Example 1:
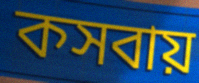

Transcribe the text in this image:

কসবায়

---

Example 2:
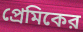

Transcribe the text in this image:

প্রেমিকের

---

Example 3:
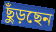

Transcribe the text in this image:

ছুঁড়ছেন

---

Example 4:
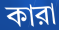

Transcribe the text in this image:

কারা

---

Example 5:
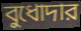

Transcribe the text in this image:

বুধোদার